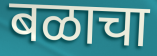
बळाचा